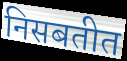
निसबतीत